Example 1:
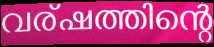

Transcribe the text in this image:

വര്ഷത്തിന്റെ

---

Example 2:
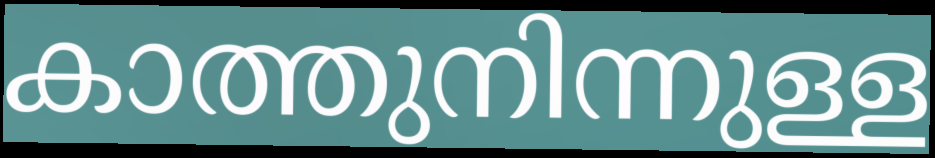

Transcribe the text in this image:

കാത്തുനിന്നുള്ള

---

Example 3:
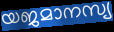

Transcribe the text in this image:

യജമാനസ്യ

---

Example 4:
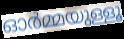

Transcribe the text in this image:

ഓർമ്മയുള്ളൂ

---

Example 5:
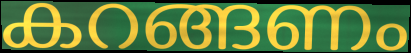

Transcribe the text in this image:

കറങ്ങണം